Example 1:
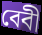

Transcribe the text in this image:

বেবী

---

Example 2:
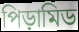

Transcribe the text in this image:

পিড়ামিড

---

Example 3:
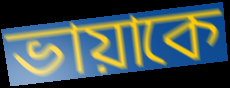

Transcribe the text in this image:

ভায়াকে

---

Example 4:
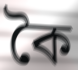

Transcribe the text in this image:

কৈ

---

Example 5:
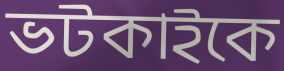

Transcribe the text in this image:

ভটকাইকে